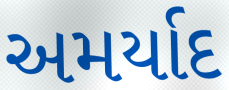
અમર્યાદ